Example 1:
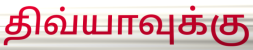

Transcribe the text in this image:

திவ்யாவுக்கு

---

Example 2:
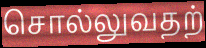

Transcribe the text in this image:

சொல்லுவதற்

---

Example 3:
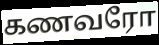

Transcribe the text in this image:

கணவரோ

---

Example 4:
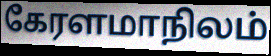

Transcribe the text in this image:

கேரளமாநிலம்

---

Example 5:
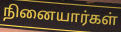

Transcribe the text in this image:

நினையார்கள்